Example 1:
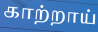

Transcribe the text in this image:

காற்றாய்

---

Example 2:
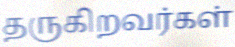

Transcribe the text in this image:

தருகிறவர்கள்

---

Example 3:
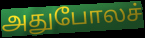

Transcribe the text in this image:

அதுபோலச்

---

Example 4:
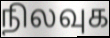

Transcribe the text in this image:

நிலவுக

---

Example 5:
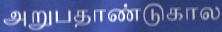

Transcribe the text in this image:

அறுபதாண்டுகால